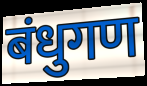
बंधुगण